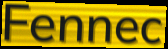
Fennec